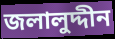
জলালুদ্দীন